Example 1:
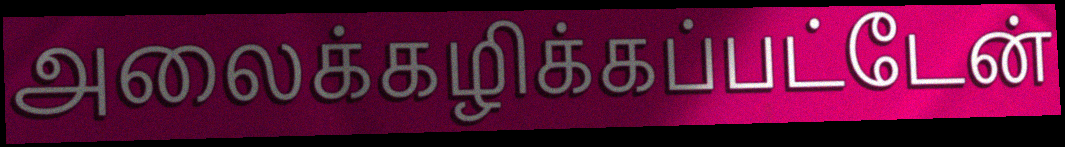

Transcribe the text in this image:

அலைக்கழிக்கப்பட்டேன்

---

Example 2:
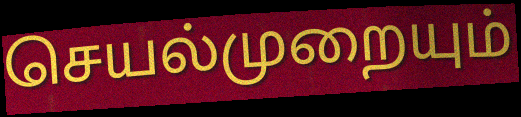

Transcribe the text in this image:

செயல்முறையும்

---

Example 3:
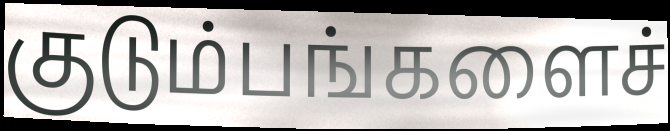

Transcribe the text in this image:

குடும்பங்களைச்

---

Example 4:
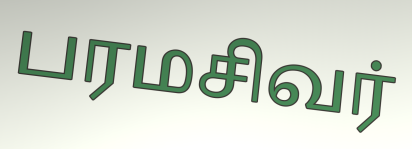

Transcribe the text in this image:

பரமசிவர்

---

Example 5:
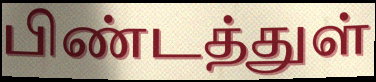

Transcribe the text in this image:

பிண்டத்துள்